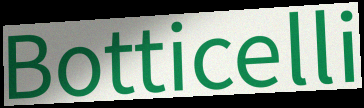
Botticelli